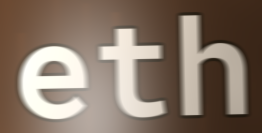
eth